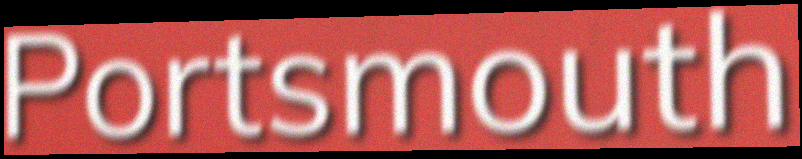
Portsmouth